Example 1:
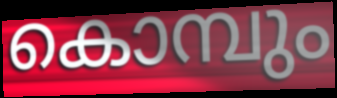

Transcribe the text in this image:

കൊമ്പും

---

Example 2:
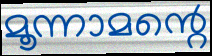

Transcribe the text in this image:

മൂന്നാമന്റെ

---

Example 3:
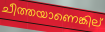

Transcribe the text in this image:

ചീത്തയാണെങ്കില്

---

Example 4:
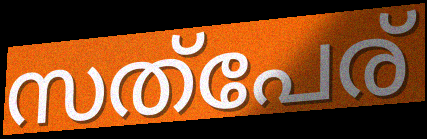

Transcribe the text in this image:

സത്പേര്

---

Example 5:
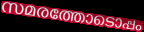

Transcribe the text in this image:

സമരത്തോടൊപ്പം